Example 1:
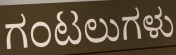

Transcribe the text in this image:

ಗಂಟಲುಗಳು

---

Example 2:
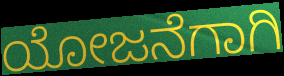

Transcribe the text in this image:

ಯೋಜನೆಗಾಗಿ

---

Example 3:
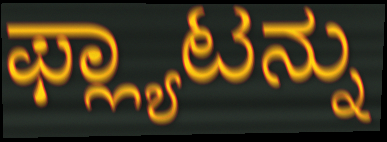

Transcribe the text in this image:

ಫ್ಲ್ಯಾಟನ್ನು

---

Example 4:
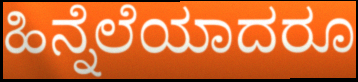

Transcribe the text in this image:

ಹಿನ್ನೆಲೆಯಾದರೂ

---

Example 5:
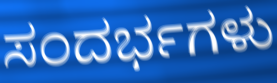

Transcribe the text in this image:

ಸಂದರ್ಭಗಳು